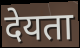
देयता